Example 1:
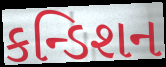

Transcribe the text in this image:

કન્ડિશન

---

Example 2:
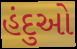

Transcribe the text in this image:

હંદુઓ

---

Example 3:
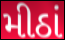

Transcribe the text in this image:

મીઠાં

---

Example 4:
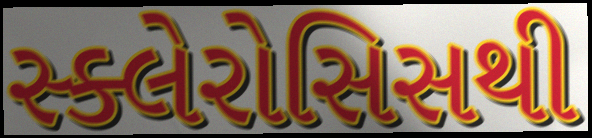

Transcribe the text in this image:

સ્ક્લેરોસિસથી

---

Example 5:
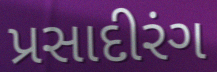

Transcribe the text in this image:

પ્રસાદીરંગ